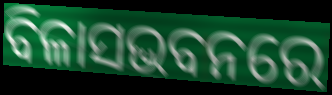
ବିଳାସଭବନରେ